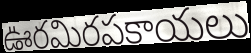
ఊరమిరపకాయలు